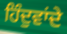
ਹਿੰਦੁਵਾਂਦੇ